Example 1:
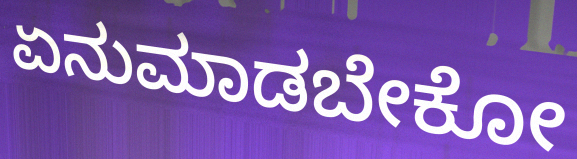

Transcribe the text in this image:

ಏನುಮಾಡಬೇಕೋ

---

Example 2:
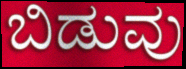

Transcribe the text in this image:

ಬಿಡುವು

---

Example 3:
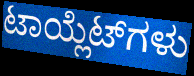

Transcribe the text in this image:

ಟಾಯ್ಲೆಟ್‌ಗಳು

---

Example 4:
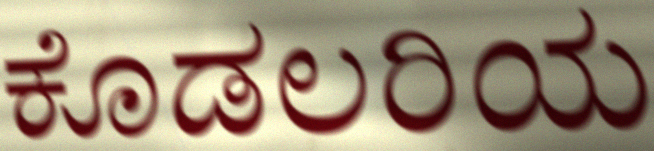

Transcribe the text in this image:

ಕೊಡಲರಿಯ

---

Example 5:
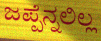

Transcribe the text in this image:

ಜಪ್ಪೆನ್ನಲಿಲ್ಲ